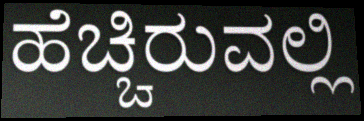
ಹೆಚ್ಚಿರುವಲ್ಲಿ